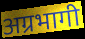
अग्रभागी